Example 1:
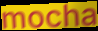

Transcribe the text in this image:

mocha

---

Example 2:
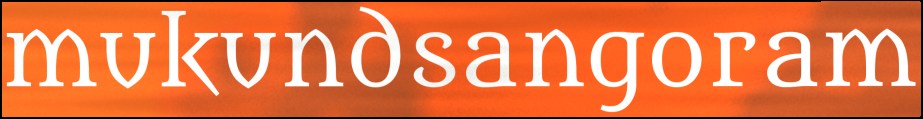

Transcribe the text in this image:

mukundsangoram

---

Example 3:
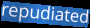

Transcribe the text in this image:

repudiated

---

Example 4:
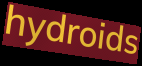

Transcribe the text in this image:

hydroids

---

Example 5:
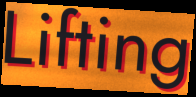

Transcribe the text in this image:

Lifting